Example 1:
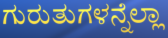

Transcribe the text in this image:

ಗುರುತುಗಳನ್ನೆಲ್ಲಾ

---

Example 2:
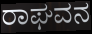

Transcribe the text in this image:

ರಾಘವನ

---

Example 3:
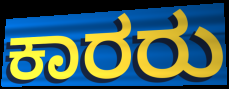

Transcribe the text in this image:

ಕಾರರು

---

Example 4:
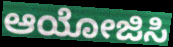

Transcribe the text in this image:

ಆಯೋಜಿಸಿ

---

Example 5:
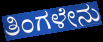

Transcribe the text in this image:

ತಿಂಗಳೇನು